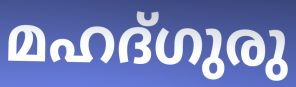
മഹദ്ഗുരു